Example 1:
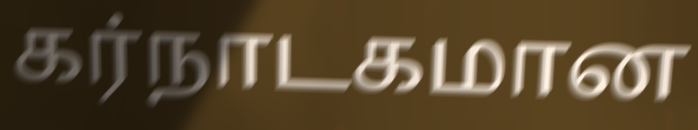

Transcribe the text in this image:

கர்நாடகமான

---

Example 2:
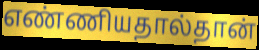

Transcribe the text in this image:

எண்ணியதால்தான்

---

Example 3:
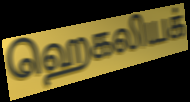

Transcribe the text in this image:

ஹெகலியக்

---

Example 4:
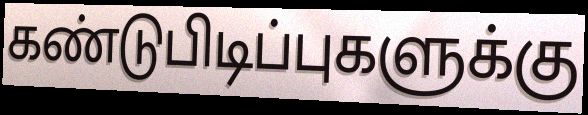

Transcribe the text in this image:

கண்டுபிடிப்புகளுக்கு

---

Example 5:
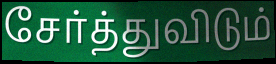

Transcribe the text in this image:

சேர்த்துவிடும்